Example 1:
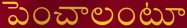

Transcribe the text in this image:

పెంచాలంటూ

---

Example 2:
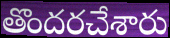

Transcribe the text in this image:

తొందరచేశారు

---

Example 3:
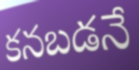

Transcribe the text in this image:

కనబడనే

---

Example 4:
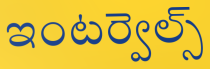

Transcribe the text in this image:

ఇంటర్వెల్స్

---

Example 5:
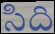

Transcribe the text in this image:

సిది